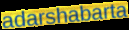
adarshabarta